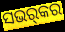
ସଭର୍‌କର